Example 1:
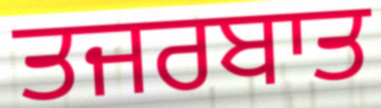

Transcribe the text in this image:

ਤਜਰਬਾਤ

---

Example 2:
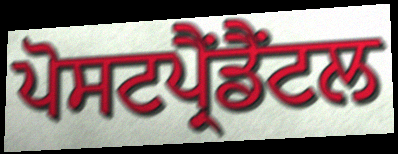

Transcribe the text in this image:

ਪੋਸਟਪ੍ਰੈਂਡੈਂਟਲ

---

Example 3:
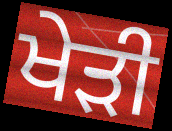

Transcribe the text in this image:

ਖੇੜੀ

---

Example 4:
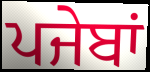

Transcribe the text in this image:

ਪਜੇਬਾਂ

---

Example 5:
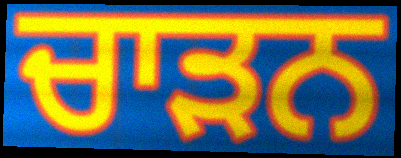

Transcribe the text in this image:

ਚਾੜਨ